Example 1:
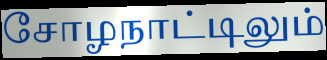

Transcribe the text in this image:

சோழநாட்டிலும்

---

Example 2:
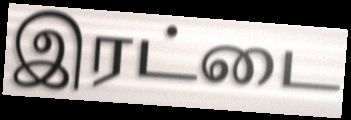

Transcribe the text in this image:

இரட்டை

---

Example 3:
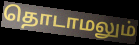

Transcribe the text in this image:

தொடாமலும்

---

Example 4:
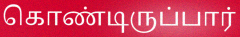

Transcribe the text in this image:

கொண்டிருப்பார்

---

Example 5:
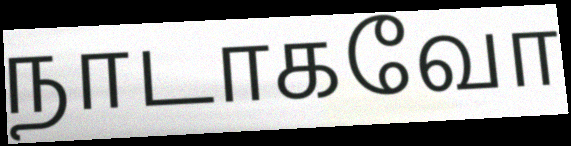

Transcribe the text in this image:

நாடாகவோ